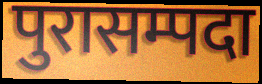
पुरासम्पदा